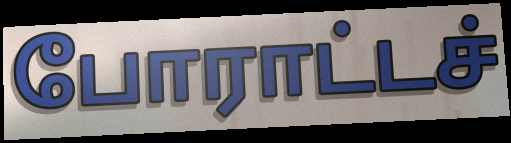
போராட்டச்